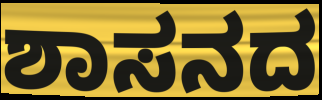
ಶಾಸನದ